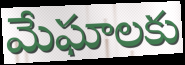
మేఘాలకు